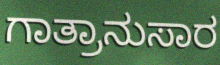
ಗಾತ್ರಾನುಸಾರ